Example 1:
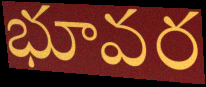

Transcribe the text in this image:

భూవర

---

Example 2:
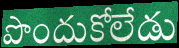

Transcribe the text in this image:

పొందుకోలేడు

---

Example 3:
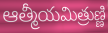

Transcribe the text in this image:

ఆత్మీయమిత్రుణ్ణి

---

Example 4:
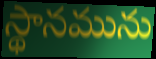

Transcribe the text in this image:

స్థానమును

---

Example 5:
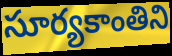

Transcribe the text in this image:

సూర్యకాంతిని